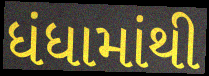
ધંધામાંથી